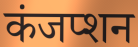
कंजप्शन